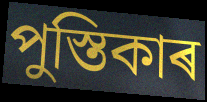
পুস্তিকাৰ